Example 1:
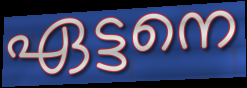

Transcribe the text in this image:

ഏട്ടനെ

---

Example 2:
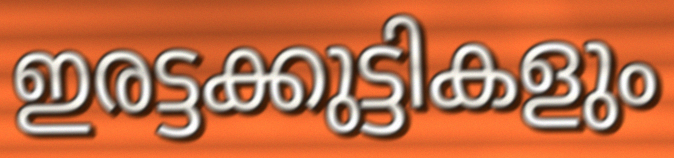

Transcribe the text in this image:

ഇരട്ടക്കുട്ടികളും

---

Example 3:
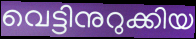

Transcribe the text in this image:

വെട്ടിനുറുക്കിയ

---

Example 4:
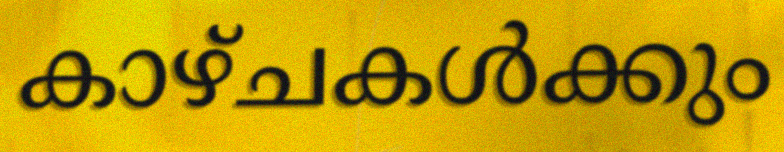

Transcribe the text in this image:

കാഴ്ചകൾക്കും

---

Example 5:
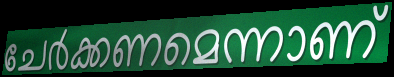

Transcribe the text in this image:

ചേർക്കണമെന്നാണ്